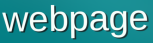
webpage